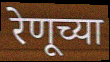
रेणूच्या